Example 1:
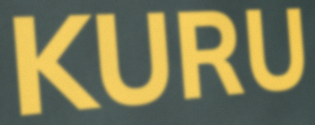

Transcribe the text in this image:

KURU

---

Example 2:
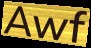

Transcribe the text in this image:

Awf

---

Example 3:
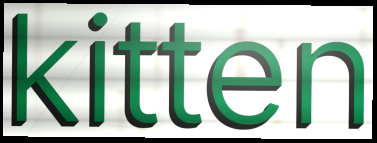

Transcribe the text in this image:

kitten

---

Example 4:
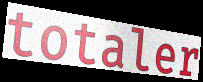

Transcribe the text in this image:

totaler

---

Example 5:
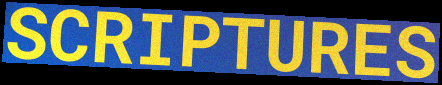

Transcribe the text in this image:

SCRIPTURES